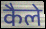
कैले